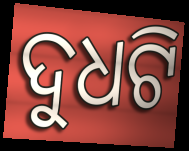
ଦୁଧଟି